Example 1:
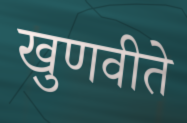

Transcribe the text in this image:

खुणवीते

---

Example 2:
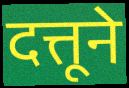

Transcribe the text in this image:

दत्तूने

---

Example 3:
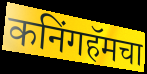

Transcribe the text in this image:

कनिंगहॅमचा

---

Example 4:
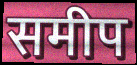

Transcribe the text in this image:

समीप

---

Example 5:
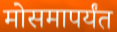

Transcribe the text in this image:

मोसमापर्यंत